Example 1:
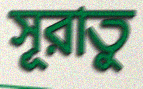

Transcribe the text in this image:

সূরাতু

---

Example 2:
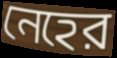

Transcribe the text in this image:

নেহের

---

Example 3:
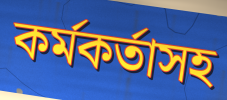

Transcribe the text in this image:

কর্মকর্তাসহ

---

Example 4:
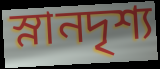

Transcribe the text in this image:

স্নানদৃশ্য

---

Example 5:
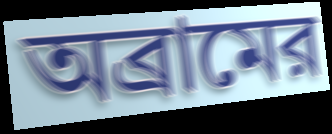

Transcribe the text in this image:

অব্রামের